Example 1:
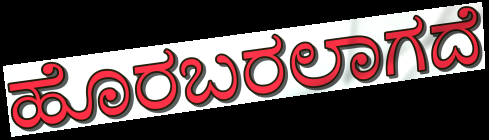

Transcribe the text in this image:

ಹೊರಬರಲಾಗದೆ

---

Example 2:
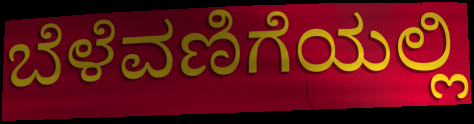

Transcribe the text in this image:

ಬೆಳೆವಣಿಗೆಯಲ್ಲಿ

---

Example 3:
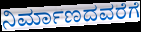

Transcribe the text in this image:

ನಿರ್ಮಾಣದವರೆಗೆ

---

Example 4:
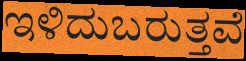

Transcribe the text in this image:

ಇಳಿದುಬರುತ್ತವೆ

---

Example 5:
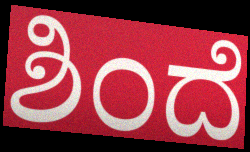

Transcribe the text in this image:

ಶಿಂದೆ